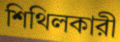
শিথিলকারী